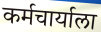
कर्मचार्याला